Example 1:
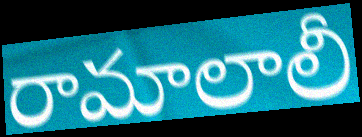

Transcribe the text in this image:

రామాలాలీ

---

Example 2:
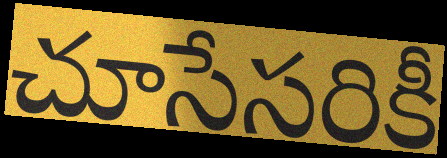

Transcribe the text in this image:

చూసేసరికీ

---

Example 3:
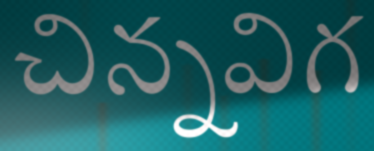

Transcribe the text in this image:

చిన్నవిగ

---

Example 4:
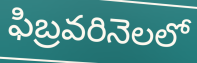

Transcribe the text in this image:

ఫిబ్రవరినెలలో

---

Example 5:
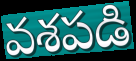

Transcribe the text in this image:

వశపడి